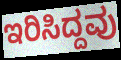
ಇರಿಸಿದ್ದವು